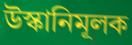
উস্কানিমূলক